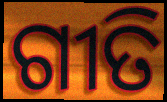
ଗୀତି